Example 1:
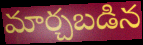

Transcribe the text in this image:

మార్చబడిన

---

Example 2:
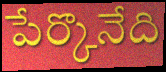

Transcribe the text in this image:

పేర్కొనేది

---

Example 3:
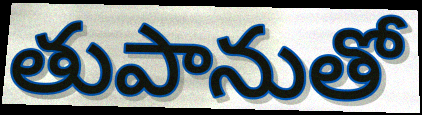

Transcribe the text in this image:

తుపానుతో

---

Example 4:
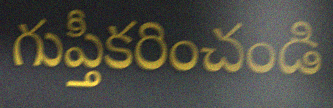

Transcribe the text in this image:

గుప్తీకరించండి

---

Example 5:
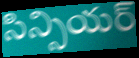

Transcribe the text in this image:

సిన్సియర్